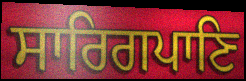
ਸਾਰਿਗਪਾਣਿ